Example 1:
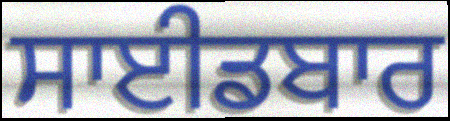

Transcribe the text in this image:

ਸਾਈਡਬਾਰ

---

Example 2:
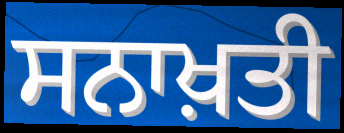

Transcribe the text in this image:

ਸਨਾਖ਼ਤੀ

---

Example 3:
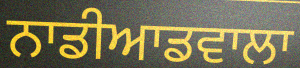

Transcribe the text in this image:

ਨਾਡੀਆਡਵਾਲਾ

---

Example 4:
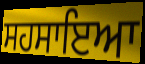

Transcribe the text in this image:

ਸਹਸਾਇਆ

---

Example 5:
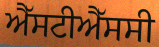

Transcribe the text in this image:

ਐੱਸਟੀਐੱਸਸੀ